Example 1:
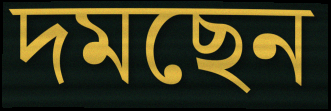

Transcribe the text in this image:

দমছেন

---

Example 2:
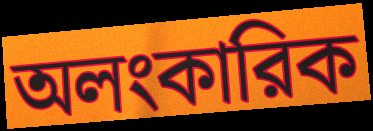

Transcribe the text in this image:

অলংকারিক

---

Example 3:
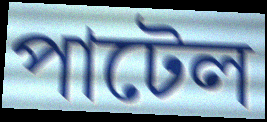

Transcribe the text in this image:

পাটেল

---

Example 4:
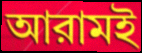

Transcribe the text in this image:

আরামই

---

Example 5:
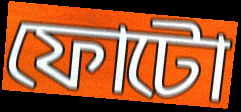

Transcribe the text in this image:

ফোটো